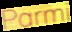
Parmi